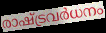
രാഷ്ട്രവർധനം